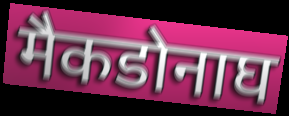
मैकडोनाघ